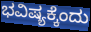
ಭವಿಷ್ಯಕ್ಕೆಂದು